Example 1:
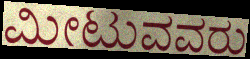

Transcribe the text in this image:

ಮೀಟುವವರು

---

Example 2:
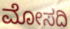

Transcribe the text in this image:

ಮೋಸದಿ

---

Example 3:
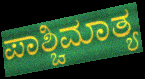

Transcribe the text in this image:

ಪಾಶ್ಚಿಮಾತ್ಯ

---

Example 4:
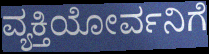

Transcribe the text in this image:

ವ್ಯಕ್ತಿಯೋರ್ವನಿಗೆ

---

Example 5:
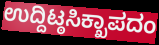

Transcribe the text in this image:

ಉದ್ದಿಟ್ಠಸಿಕ್ಖಾಪದಂ